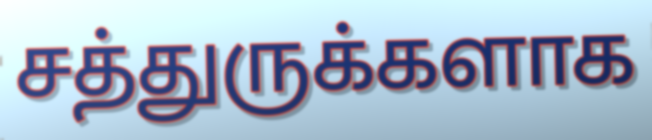
சத்துருக்களாக